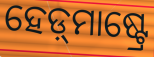
ହେଡ଼୍‌ମାଷ୍ଟ୍ରେ